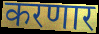
करणार